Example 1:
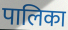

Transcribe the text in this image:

पालिका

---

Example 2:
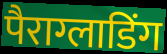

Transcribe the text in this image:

पैराग्लाडिंग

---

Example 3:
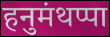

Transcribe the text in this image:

हनुमंथप्पा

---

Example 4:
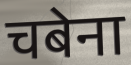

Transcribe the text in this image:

चबेना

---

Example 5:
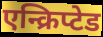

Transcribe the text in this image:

एन्क्रिप्टेड